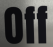
Off